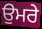
ਉਮਰੇ